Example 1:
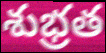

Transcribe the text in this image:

శుభ్రత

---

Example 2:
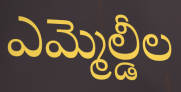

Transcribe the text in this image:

ఎమ్మెల్డీల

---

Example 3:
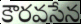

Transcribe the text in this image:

కౌరవసేన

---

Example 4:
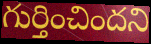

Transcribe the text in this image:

గుర్తించిందని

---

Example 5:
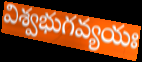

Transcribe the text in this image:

విశ్వభుగవ్యయః